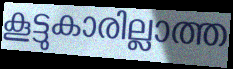
കൂട്ടുകാരില്ലാത്ത